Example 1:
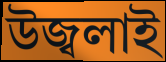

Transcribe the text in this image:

উজ্বলাই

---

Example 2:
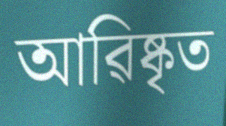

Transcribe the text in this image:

আৱিষ্কৃত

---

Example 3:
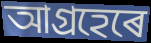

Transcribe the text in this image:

আগ্ৰহেৰে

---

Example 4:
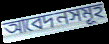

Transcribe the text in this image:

আবেদনসমূহ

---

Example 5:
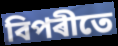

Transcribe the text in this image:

বিপৰীতে